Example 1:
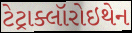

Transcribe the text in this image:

ટેટ્રાક્લૉરોઇથેન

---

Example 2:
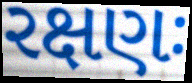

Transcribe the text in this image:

રક્ષણઃ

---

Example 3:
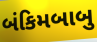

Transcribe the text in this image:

બંકિમબાબુ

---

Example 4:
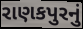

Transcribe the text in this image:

રાણકપુરનું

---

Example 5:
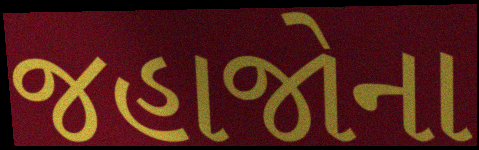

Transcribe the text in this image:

જહાજોના